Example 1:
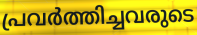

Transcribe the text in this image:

പ്രവർത്തിച്ചവരുടെ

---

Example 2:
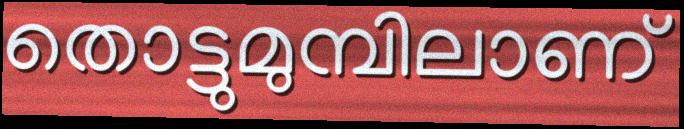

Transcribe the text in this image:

തൊട്ടുമുമ്പിലാണ്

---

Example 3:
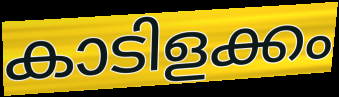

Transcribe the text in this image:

കാടിളക്കം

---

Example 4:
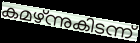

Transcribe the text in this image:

കമഴ്ന്നുകിടന്ന്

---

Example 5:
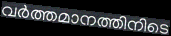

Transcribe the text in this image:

വർത്തമാനത്തിനിടെ